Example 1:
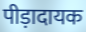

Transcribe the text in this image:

पीड़ादायक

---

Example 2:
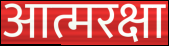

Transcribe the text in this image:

आत्मरक्षा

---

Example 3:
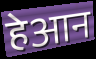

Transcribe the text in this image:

हेआन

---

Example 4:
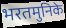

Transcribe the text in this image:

भरतमुनिके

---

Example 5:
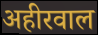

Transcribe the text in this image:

अहीरवाल